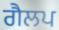
ਗੈਲਪ